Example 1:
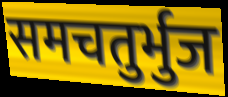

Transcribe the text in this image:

समचतुर्भुज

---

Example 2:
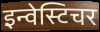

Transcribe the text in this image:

इन्वेस्टिचर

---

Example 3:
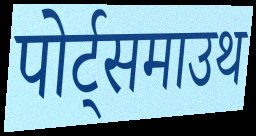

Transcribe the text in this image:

पोर्ट्समाउथ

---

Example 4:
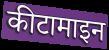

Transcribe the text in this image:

कीटामाइन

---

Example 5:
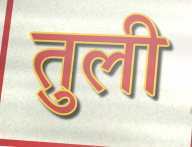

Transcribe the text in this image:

तुली